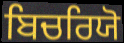
ਬਿਚਰਿਯੋ